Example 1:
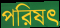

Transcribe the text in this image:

পরিষৎ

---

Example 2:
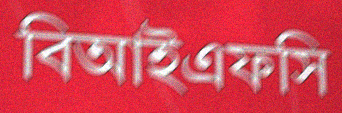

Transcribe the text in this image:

বিআইএফসি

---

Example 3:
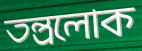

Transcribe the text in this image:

তন্ত্রলোক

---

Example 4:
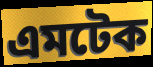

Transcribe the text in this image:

এমটেক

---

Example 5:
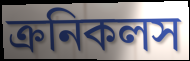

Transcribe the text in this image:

ক্রনিকলস